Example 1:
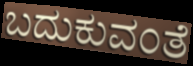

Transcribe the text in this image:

ಬದುಕುವಂತೆ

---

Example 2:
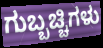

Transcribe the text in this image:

ಗುಬ್ಬಚ್ಚಿಗಳು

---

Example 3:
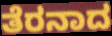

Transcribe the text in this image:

ತೆರನಾದ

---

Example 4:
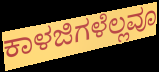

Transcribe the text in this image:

ಕಾಳಜಿಗಳೆಲ್ಲವೂ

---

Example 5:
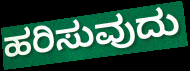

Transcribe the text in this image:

ಹರಿಸುವುದು